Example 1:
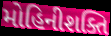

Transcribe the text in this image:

મોહિનીશક્તિ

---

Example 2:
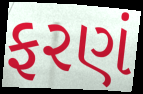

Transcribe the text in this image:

ફરણં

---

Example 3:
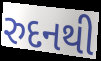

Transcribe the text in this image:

રુદનથી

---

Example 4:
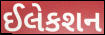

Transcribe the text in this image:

ઈલેકશન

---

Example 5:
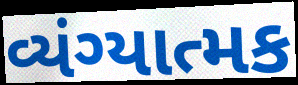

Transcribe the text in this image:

વ્યંગ્યાત્મક